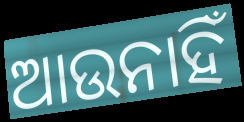
ଆଉନାହିଁ